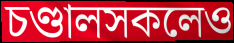
চণ্ডালসকলেও